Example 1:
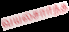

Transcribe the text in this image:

வயல்சார்ந்த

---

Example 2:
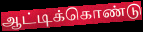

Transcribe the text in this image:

ஆட்டிக்கொண்டு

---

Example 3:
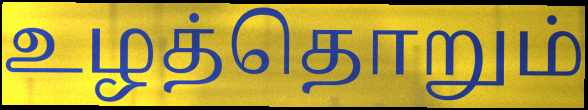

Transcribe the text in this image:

உழத்தொறும்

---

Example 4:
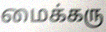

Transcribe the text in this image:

மைக்கரு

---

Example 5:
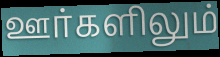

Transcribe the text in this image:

ஊர்களிலும்